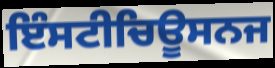
ਇੰਸਟੀਚਿਊਸਨਜ